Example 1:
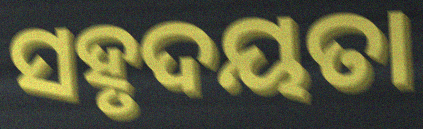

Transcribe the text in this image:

ସହୃଦୟତା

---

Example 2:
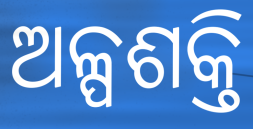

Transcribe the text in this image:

ଅଳ୍ପଶକ୍ତି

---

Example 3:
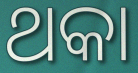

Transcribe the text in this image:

ଥକା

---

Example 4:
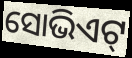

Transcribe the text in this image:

ସୋଭିଏଟ୍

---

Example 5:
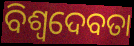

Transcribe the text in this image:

ବିଶ୍ୱଦେବତା